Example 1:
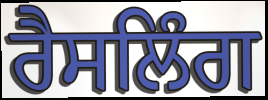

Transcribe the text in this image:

ਰੈਸਲਿੰਗ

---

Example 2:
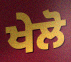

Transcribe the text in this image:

ਖੇਲੋ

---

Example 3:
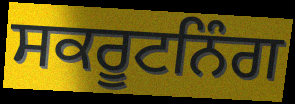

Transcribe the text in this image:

ਸਕਰੂਟਨਿੰਗ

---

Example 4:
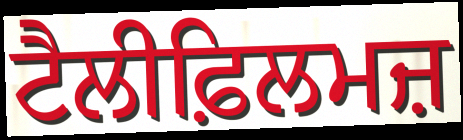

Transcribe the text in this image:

ਟੈਲੀਫ਼ਿਲਮਜ਼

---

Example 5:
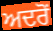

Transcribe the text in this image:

ਅਦਰੋਂ